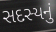
સદસ્યનું